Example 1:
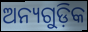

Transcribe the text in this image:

ଅନ୍ୟଗୁଡ଼ିକ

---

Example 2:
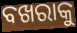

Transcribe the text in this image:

ବଖରାକୁ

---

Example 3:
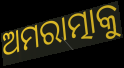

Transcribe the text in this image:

ଅମରାତ୍ମାକୁ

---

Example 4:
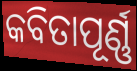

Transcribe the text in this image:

କବିତାପୂର୍ଣ୍ଣ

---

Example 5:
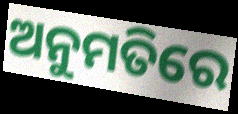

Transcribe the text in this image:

ଅନୁମତିରେ